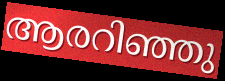
ആരറിഞ്ഞു